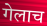
गेलाच